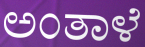
ಅಂತಾಳೆ